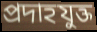
প্রদাহযুক্ত